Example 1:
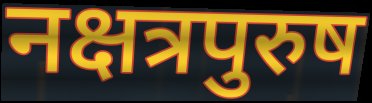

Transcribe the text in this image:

नक्षत्रपुरुष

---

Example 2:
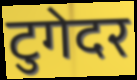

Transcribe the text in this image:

टुगेदर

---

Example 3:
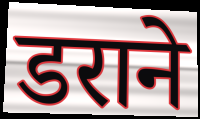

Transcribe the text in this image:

डराने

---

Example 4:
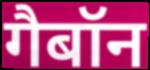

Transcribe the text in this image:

गैबॉन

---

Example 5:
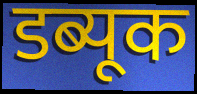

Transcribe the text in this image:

डब्यूक